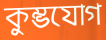
কুম্ভযোগ